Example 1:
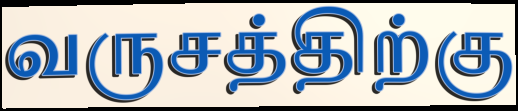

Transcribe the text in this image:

வருசத்திற்கு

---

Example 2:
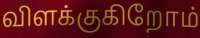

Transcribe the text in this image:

விளக்குகிறோம்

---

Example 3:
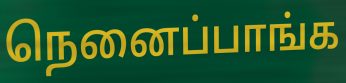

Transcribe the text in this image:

நெனைப்பாங்க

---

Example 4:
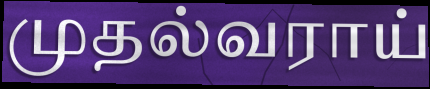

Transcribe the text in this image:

முதல்வராய்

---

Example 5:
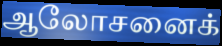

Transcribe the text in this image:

ஆலோசனைக்